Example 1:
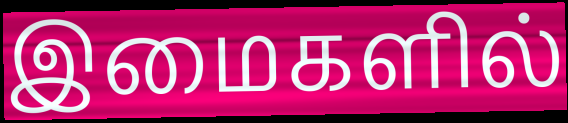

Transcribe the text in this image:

இமைகளில்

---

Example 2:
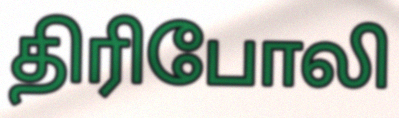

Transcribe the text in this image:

திரிபோலி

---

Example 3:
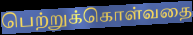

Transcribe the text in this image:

பெற்றுக்கொள்வதை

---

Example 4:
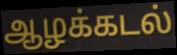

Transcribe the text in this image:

ஆழக்கடல்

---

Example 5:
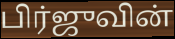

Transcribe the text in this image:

பிர்ஜுவின்